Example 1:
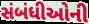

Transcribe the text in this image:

સંબંધીઓની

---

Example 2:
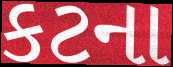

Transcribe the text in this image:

કટના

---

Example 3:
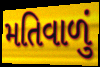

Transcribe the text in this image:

મતિવાળું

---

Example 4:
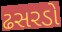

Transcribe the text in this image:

ઢસરડો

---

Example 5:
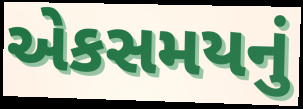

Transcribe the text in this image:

એકસમયનું